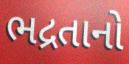
ભદ્રતાનો